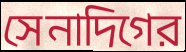
সেনাদিগের